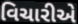
વિચારીએ